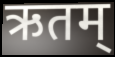
ऋतम्